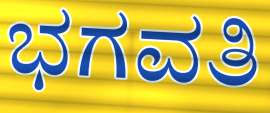
ಭಗವತಿ